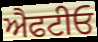
ਐਫਟੀਓ